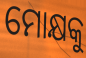
ମୋକ୍ଷକୁ